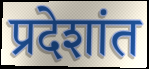
प्रदेशांत